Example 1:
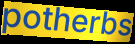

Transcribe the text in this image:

potherbs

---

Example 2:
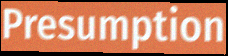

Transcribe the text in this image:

Presumption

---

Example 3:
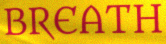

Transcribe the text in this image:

BREATH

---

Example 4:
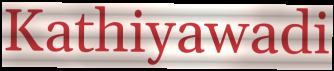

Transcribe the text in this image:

Kathiyawadi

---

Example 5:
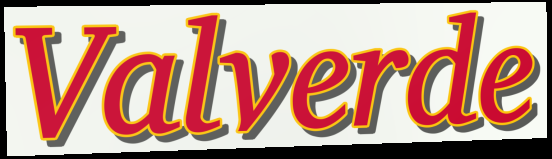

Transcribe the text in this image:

Valverde